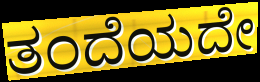
ತಂದೆಯದೇ